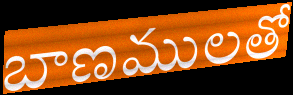
బాణములతో